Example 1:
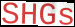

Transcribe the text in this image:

SHGs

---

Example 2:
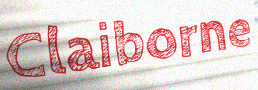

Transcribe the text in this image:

Claiborne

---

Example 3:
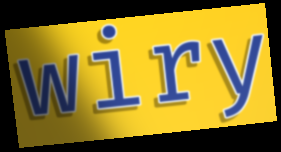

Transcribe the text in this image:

wiry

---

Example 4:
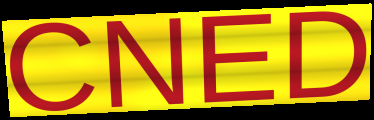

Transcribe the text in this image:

CNED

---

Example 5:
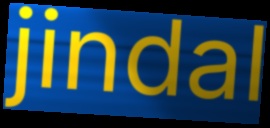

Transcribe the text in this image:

jindal